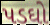
પડઘો